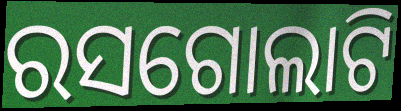
ରସଗୋଲାଟି